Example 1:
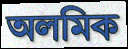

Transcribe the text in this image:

অলমিক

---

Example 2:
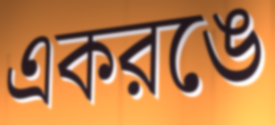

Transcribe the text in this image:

একরঙে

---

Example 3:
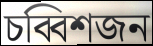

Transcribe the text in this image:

চব্বিশজন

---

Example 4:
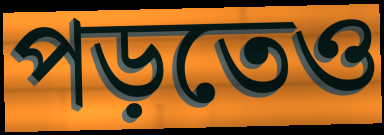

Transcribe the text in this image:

পড়তেও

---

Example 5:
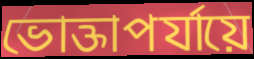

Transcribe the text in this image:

ভোক্তাপর্যায়ে